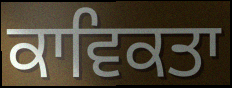
ਕਾਵਿਕਤਾ